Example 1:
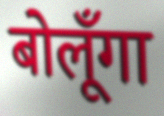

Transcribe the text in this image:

बोलूँगा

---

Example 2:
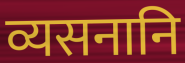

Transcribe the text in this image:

व्यसनानि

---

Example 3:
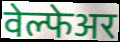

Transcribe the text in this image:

वेल्फेअर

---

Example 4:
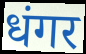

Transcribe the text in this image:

धंगर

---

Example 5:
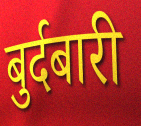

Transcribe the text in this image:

बुर्दबारी